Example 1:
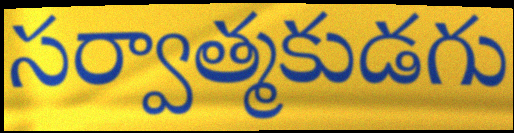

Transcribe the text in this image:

సర్వాత్మకుడగు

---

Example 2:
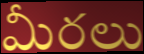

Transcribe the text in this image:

మీరలు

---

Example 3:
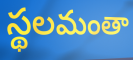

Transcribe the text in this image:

స్థలమంతా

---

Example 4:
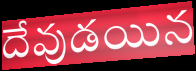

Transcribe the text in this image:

దేవుడయిన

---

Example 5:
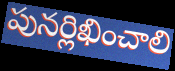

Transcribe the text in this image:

పునర్లిఖించాలి